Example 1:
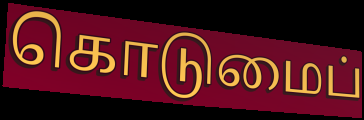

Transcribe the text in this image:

கொடுமைப்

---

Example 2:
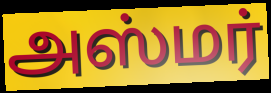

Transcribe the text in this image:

அஸ்மர்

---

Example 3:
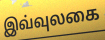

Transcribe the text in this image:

இவ்வுலகை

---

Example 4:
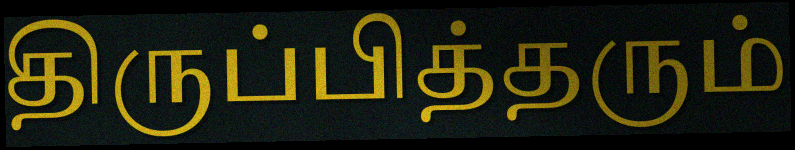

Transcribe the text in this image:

திருப்பித்தரும்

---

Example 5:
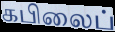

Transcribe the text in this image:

கபிலைப்